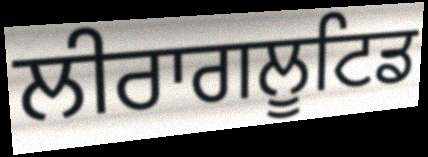
ਲੀਰਾਗਲੂਟਿਡ